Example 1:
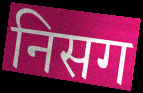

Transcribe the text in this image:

निसग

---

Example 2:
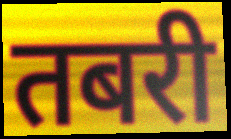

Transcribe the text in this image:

तबरी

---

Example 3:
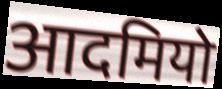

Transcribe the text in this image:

आदमियो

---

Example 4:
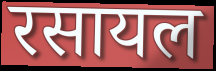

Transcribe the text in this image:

रसायल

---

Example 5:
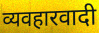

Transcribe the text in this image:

व्यवहारवादी